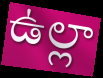
ఉల్లా